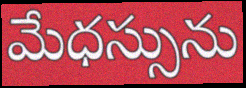
మేధస్సును